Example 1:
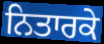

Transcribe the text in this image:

ਨਿਤਾਰਕੇ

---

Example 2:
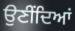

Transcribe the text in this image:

ਉਣੀਂਦਿਆਂ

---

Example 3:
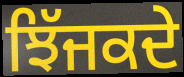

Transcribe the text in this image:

ਝਿੱਜਕਦੇ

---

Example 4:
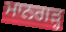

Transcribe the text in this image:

ਮਾਨਗੜ੍ਹ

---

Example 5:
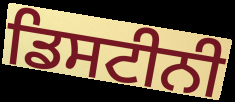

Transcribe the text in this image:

ਡਿਸਟੀਨੀ